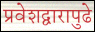
प्रवेशद्वारापुढे